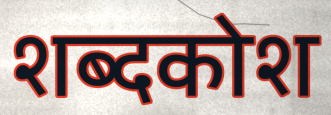
शब्दकोश